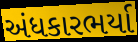
અંધકારભર્યા